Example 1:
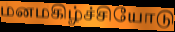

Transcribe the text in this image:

மனமகிழ்ச்சியோடு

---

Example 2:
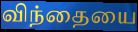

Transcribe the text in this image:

விந்தையை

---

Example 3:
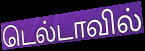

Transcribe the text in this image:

டெல்டாவில்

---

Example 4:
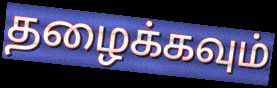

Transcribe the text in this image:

தழைக்கவும்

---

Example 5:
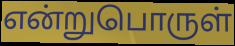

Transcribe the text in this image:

என்றுபொருள்